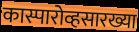
कास्पारोव्हसारख्या